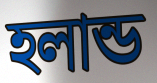
হলান্ড